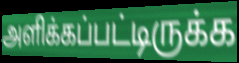
அளிக்கப்பட்டிருக்க